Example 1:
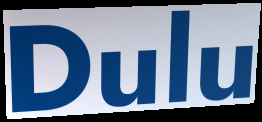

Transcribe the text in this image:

Dulu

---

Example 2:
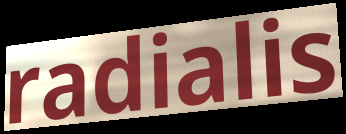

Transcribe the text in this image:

radialis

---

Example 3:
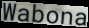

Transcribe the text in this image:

Wabona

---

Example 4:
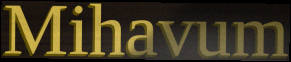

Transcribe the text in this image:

Mihavum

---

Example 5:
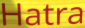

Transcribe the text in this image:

Hatra